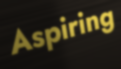
Aspiring